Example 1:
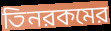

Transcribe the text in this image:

তিনরকমের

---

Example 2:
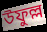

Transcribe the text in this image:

উফুল্ল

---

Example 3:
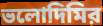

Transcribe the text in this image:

ভলোদিমির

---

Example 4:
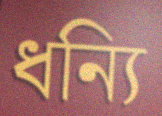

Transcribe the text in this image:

ধন্যি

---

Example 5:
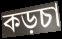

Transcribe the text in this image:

কড়চা